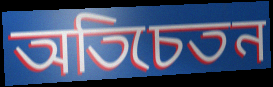
অতিচেতন